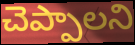
చెప్పాలని